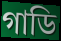
গাডি